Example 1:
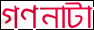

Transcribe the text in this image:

গণনাটা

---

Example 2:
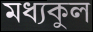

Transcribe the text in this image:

মধ্যকুল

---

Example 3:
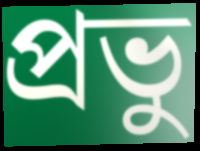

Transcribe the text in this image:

প্রভু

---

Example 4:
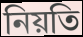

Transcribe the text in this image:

নিয়তি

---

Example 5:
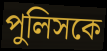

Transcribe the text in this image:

পুলিসকে